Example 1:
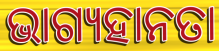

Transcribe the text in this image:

ଭାଗ୍ୟହାନତା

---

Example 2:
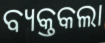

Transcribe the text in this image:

ବ୍ୟକ୍ତକଲା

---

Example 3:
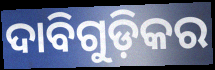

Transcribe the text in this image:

ଦାବିଗୁଡ଼ିକର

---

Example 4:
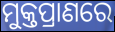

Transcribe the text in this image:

ମୁକ୍ତପ୍ରାଣରେ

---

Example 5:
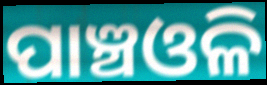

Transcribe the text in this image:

ପାଞ୍ଚଓଳି